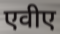
एवीए